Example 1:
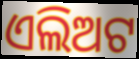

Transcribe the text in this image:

ଏଲିଅଟ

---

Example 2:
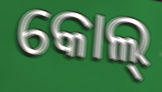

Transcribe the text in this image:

କୋଲ୍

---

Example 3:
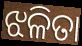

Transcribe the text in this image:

ଝଳିତା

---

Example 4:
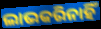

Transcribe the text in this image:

ଲାଭକରିନାହିଁ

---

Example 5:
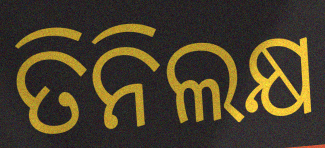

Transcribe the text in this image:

ତିନିଲକ୍ଷ